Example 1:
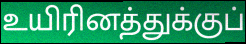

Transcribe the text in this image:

உயிரினத்துக்குப்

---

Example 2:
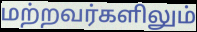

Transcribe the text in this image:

மற்றவர்களிலும்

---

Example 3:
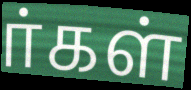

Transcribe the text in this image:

ர்கள்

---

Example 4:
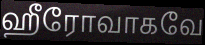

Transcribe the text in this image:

ஹீரோவாகவே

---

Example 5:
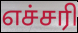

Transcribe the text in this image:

எச்சரி